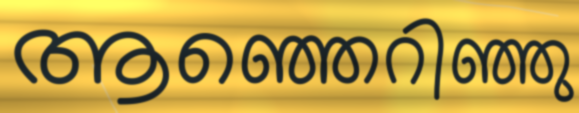
ആഞ്ഞെറിഞ്ഞു